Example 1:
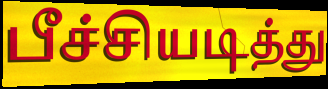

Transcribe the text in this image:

பீச்சியடித்து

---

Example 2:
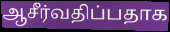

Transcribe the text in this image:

ஆசீர்வதிப்பதாக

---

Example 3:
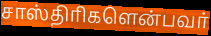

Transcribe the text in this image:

சாஸ்திரிகளென்பவர்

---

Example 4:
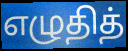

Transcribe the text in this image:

எழுதித்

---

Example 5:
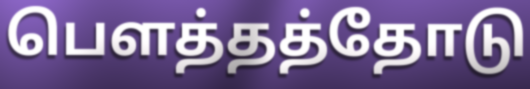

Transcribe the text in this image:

பௌத்தத்தோடு